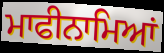
ਮਾਫੀਨਾਮਿਆਂ